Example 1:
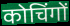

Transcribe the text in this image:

कोचिंगों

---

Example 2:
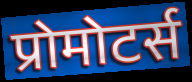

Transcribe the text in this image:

प्रोमोटर्स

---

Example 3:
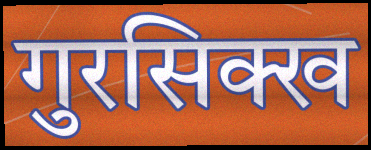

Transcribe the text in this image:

गुरसिक्ख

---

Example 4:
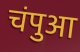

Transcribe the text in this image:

चंपुआ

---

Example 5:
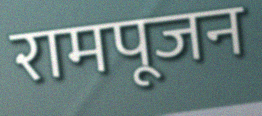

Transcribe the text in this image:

रामपूजन